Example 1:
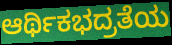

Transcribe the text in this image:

ಆರ್ಥಿಕಭದ್ರತೆಯ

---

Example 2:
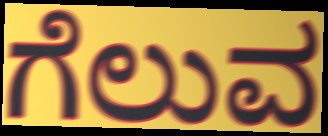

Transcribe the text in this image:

ಗೆಲುವ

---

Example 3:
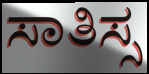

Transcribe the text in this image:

ಸಾತಿಸ್ಸ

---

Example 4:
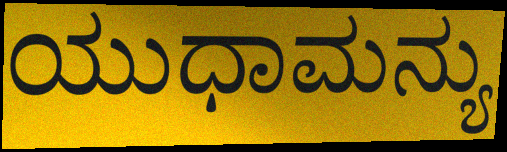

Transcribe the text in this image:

ಯುಧಾಮನ್ಯು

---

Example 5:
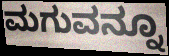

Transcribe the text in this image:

ಮಗುವನ್ನೂ